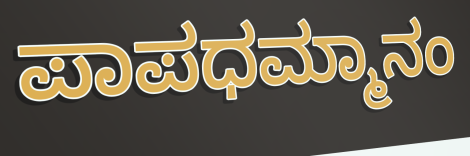
ಪಾಪಧಮ್ಮಾನಂ